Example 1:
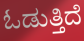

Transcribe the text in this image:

ಓಡುತ್ತಿದೆ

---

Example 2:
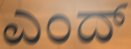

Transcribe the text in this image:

ಎಂದ್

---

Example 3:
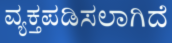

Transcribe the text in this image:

ವ್ಯಕ್ತಪಡಿಸಲಾಗಿದೆ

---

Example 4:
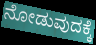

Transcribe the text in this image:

ನೋಡುವುದಕ್ಕೆ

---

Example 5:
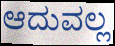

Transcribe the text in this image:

ಆದುವಲ್ಲ